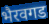
भैरवगड